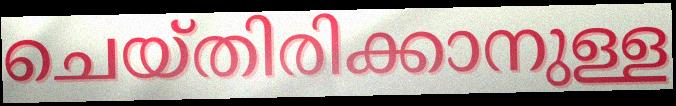
ചെയ്തിരിക്കാനുള്ള